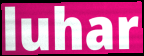
luhar